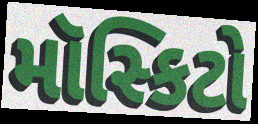
મૉસ્કિટો